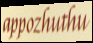
appozhuthu